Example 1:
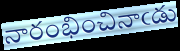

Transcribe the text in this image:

నారంభించినాఁడు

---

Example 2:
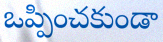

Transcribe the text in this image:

ఒప్పించకుండా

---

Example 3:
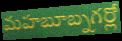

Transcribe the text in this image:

మహబూబ్నగర్లో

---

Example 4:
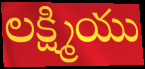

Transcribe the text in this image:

లక్ష్మియు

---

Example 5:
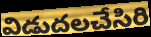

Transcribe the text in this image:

విడుదలచేసిరి